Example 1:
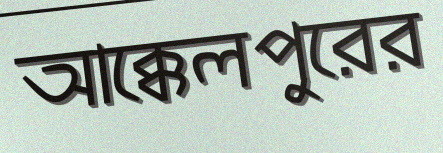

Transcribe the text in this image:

আক্কেলপুরের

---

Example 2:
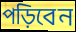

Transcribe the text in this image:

পড়িবেন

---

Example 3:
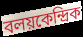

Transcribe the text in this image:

বলয়কেন্দ্রিক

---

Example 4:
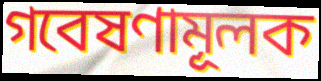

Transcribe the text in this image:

গবেষণামূলক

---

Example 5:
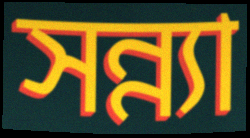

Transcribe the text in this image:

সন্ন্যা